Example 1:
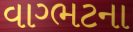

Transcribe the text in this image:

વાગ્ભટના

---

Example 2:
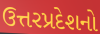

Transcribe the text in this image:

ઉત્તરપ્રદેશનો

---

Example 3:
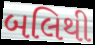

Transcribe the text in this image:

બલિથી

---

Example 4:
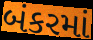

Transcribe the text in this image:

બંકરમાં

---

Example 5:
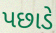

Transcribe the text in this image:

પછાડે